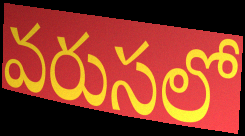
వరుసలో